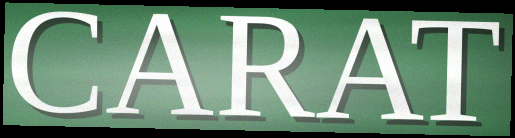
CARAT